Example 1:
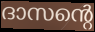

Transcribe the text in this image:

ദാസന്റെ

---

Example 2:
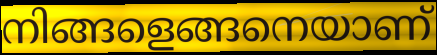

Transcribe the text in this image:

നിങ്ങളെങ്ങനെയാണ്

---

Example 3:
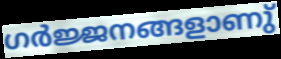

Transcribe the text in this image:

ഗർജ്ജനങ്ങളാണു്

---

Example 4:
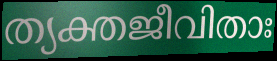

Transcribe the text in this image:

ത്യക്തജീവിതാഃ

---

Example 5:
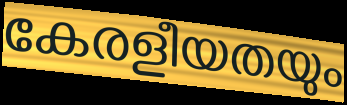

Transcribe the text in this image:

കേരളീയതയും